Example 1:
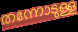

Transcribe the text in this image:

തന്നോടുള്ള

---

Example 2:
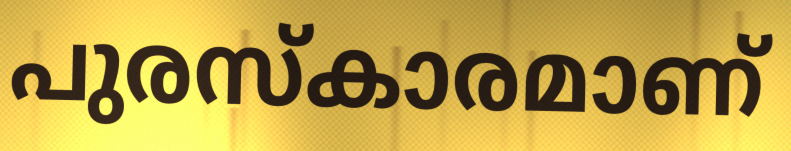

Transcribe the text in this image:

പുരസ്കാരമാണ്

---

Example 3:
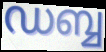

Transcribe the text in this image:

ഡബ്ബ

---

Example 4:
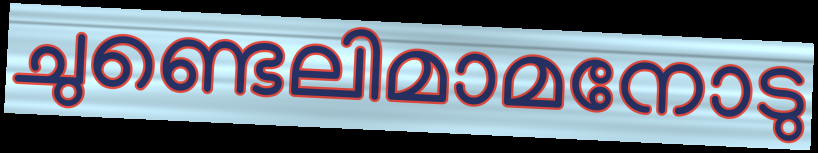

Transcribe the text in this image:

ചുണ്ടെലിമാമനോടു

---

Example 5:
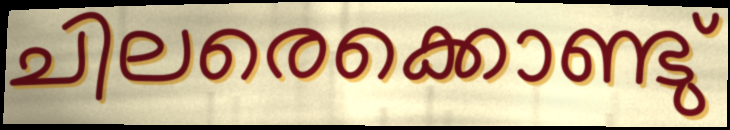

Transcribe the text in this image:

ചിലരെക്കൊണ്ടു്